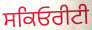
ਸਕਿਓਰੀਟੀ